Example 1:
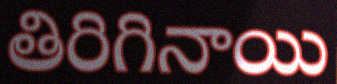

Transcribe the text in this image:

తిరిగినాయి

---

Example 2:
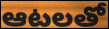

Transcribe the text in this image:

ఆటలతో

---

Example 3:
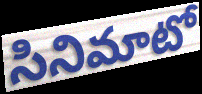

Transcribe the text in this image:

సినిమాటో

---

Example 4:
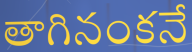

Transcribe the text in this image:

తాగినంకనే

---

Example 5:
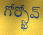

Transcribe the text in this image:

గోర్స్ఖోవ్